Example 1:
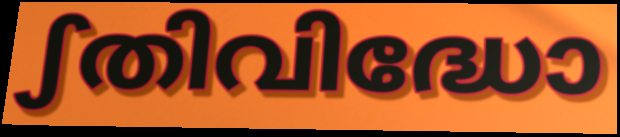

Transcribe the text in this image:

ഽതിവിദ്ധോ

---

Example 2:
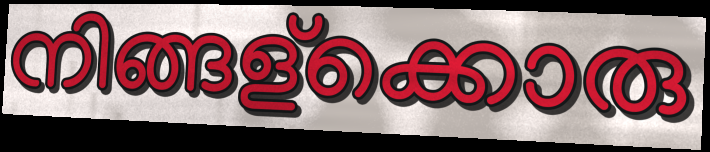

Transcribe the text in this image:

നിങ്ങള്ക്കൊരു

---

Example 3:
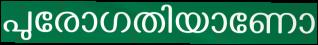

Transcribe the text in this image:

പുരോഗതിയാണോ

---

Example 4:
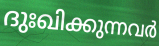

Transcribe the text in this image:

ദുഃഖിക്കുന്നവർ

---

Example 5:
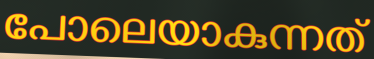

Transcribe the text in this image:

പോലെയാകുന്നത്